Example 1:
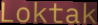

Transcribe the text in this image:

Loktak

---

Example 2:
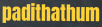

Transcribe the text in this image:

padithathum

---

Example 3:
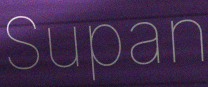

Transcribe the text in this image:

Supan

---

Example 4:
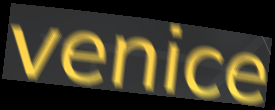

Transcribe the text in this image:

venice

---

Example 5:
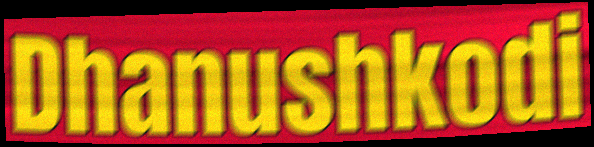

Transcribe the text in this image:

Dhanushkodi